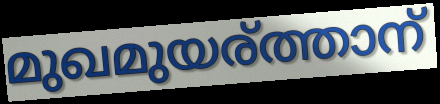
മുഖമുയര്ത്താന്